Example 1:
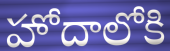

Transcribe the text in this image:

హోదాలోకి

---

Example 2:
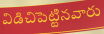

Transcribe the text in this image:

విడిచిపెట్టినవారు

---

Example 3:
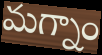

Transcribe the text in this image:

మగ్నాం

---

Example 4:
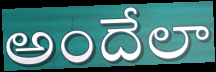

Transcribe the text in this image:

అందేలా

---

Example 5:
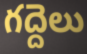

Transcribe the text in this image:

గద్దెలు